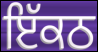
ਇੱਕਠ